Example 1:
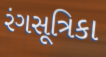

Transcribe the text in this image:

રંગસૂત્રિકા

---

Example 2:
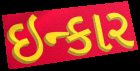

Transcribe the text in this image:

ઇન્કાર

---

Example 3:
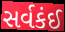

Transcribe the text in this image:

સર્વકંઈ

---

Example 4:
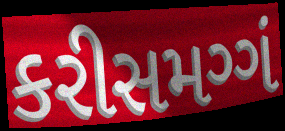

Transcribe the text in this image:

કરીસમગ્ગં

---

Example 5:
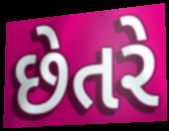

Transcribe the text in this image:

છેતરે